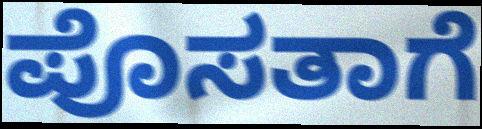
ಪೊಸತಾಗೆ